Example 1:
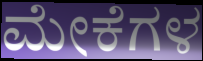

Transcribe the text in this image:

ಮೇಕೆಗಳ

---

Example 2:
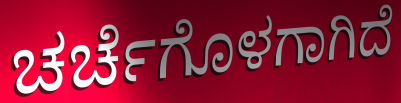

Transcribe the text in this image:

ಚರ್ಚೆಗೊಳಗಾಗಿದೆ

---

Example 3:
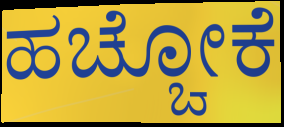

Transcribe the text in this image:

ಹಚ್ಚೋಕೆ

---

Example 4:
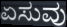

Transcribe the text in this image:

ಏಸುವು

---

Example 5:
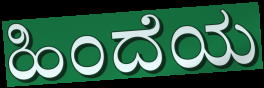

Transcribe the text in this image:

ಹಿಂದೆಯ